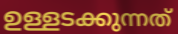
ഉള്ളടക്കുന്നത്